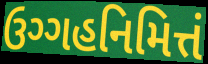
ઉગ્ગહનિમિત્તં